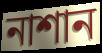
নাশান